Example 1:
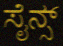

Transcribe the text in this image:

ಸೈನ್ಸ್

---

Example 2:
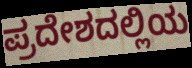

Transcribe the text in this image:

ಪ್ರದೇಶದಲ್ಲಿಯ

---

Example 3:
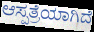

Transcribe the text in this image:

ಆಸ್ಪತ್ರೆಯಾಗಿದೆ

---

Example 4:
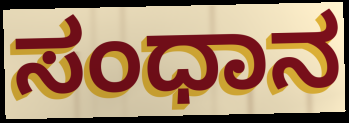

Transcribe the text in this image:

ಸಂಧಾನ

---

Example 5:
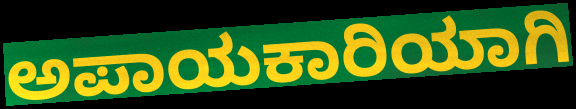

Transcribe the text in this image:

ಅಪಾಯಕಾರಿಯಾಗಿ